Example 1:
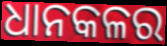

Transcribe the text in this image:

ଧାନକଳର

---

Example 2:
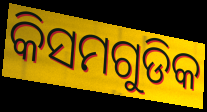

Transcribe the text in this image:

କିସମଗୁଡିକ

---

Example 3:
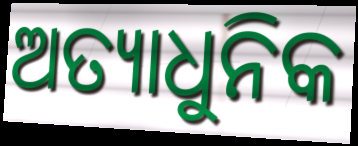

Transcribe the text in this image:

ଅତ୍ୟାଧୁନିକ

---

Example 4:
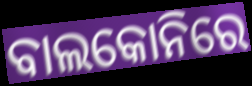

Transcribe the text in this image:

ବାଲକୋନିରେ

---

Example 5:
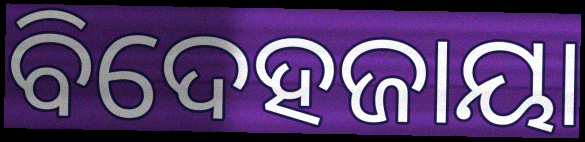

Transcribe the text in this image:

ବିଦେହଜାୟା